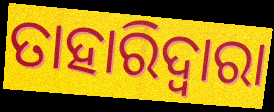
ତାହାରିଦ୍ଵାରା